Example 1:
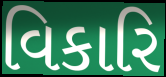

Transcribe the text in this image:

વિકારિ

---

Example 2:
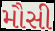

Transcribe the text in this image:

મૌસી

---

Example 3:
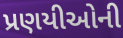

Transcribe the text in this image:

પ્રણયીઓની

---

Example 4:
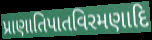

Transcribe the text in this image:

પ્રાણાતિપાતવિરમણાદિ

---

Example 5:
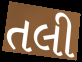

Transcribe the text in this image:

તલી